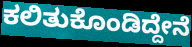
ಕಲಿತುಕೊಂಡಿದ್ದೇನೆ